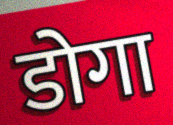
डोगा